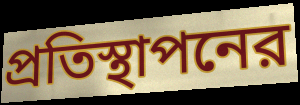
প্রতিস্থাপনের